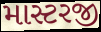
માસ્ટરજી